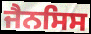
ਜੈਨਸਿਸ